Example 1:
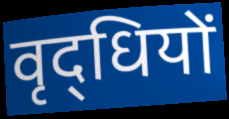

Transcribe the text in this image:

वृद्धियों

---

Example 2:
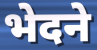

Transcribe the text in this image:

भेदने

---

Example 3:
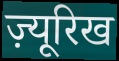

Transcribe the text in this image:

ज़्यूरिख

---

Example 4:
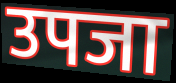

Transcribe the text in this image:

उपजा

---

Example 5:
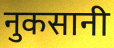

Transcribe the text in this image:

नुकसानी